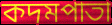
কদমপাতা